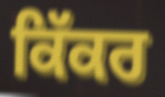
ਕਿੱਕਰ